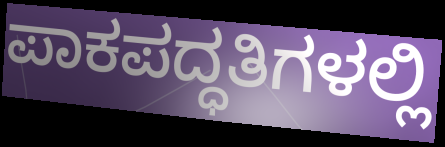
ಪಾಕಪದ್ಧತಿಗಳಲ್ಲಿ